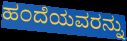
ಹಂದೆಯವರನ್ನು